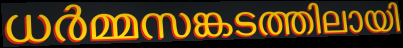
ധർമ്മസങ്കടത്തിലായി